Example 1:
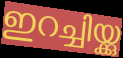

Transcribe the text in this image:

ഇറച്ചിയ്ക്കു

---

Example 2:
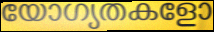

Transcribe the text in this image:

യോഗ്യതകളോ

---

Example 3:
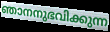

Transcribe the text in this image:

ഞാനനുഭവിക്കുന്ന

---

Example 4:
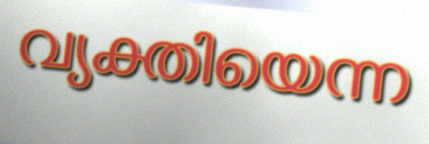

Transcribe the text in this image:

വ്യക്തിയെന്ന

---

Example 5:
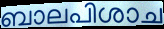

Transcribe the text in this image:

ബാലപിശാച